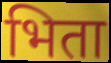
भिता